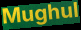
Mughul